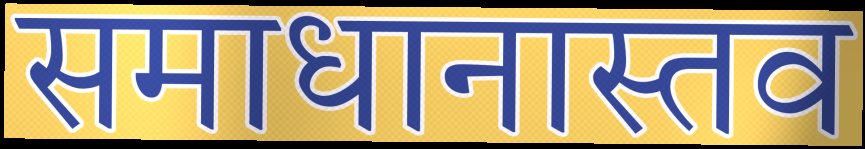
समाधानास्तव